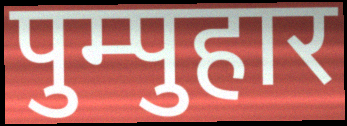
पुम्पुहार